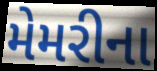
મેમરીના